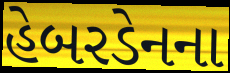
હેબરડેનના